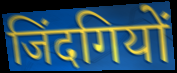
जिंदगियों